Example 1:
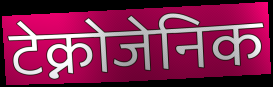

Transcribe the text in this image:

टेक्नोजेनिक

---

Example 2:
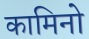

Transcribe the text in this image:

कामिनो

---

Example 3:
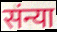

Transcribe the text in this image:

संन्या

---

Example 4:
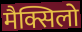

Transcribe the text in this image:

मैक्सिलो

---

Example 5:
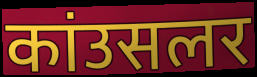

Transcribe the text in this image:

कांउसलर